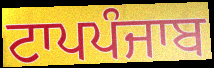
ਟਾਪਪੰਜਾਬ